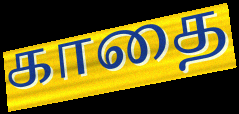
காதை